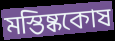
মস্তিষ্ককোষ